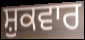
ਸ਼ੁਕਵਾਰ